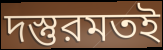
দস্তুরমতই